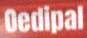
Oedipal